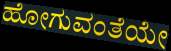
ಹೋಗುವಂತೆಯೇ